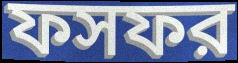
ফসফর